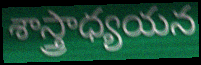
శాస్త్రాధ్యయన